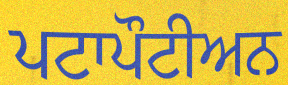
ਪਟਾਪੌਟੀਅਨ